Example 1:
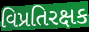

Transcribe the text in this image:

વિપ્રતિરક્ષક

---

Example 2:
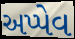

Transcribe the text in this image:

અપ્પેવ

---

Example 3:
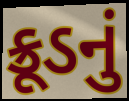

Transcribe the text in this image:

ક્રૂડનું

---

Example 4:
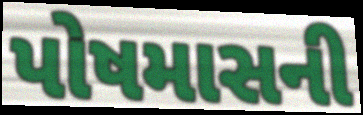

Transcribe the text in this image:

પોષમાસની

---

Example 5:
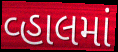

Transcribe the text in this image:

વ્હાલમાં